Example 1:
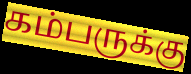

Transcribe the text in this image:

கம்பருக்கு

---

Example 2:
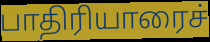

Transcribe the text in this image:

பாதிரியாரைச்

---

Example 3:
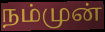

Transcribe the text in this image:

நம்முன்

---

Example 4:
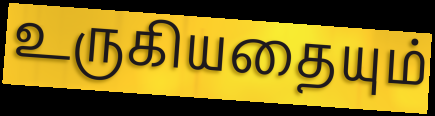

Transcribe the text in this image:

உருகியதையும்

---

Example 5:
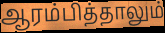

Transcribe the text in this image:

ஆரம்பித்தாலும்